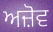
ਅਜ਼ੋਵ